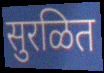
सुरळित